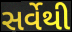
સર્વેથી